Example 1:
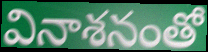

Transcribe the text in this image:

వినాశనంతో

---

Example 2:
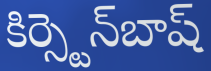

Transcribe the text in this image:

కిర్స్టెన్‌బాష్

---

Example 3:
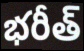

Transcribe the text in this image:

భరీత్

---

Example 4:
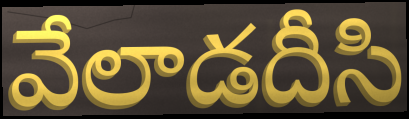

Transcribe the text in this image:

వేలాడదీసి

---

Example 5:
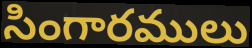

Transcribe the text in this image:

సింగారములు